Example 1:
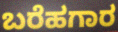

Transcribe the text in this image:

ಬರೆಹಗಾರ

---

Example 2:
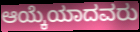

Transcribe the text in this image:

ಆಯ್ಕೆಯಾದವರು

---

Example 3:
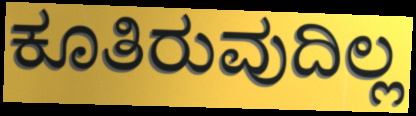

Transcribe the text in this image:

ಕೂತಿರುವುದಿಲ್ಲ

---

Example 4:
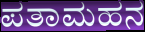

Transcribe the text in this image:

ಪತಾಮಹನ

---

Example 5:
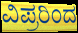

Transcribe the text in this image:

ವಿಪ್ರರಿಂದ